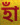
হাঁ